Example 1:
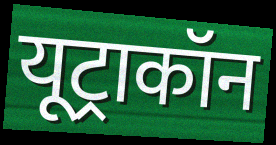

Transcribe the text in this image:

यूट्राकॉन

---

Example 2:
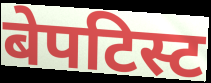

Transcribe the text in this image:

बेपटिस्ट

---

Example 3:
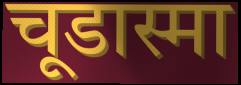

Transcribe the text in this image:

चूडास्मा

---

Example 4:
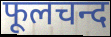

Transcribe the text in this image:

फूलचन्द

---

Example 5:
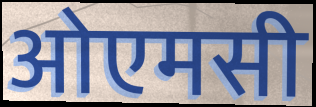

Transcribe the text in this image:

ओएमसी